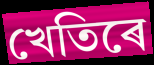
খেতিৰে